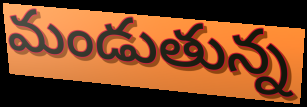
మండుతున్న